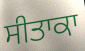
ਸੀਤਾਕਾ